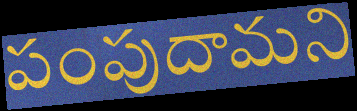
పంపుదామని